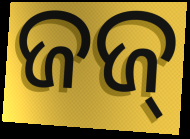
ଜଜ୍